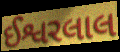
ઈશ્વરલાલ